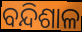
ବନ୍ଦିଶାଳ